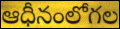
ఆధీనంలోగల